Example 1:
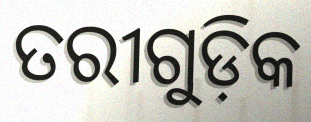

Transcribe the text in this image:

ତରୀଗୁଡ଼ିକ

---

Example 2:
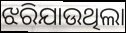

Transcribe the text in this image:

ଝରିଯାଉଥିଲା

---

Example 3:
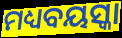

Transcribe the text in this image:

ମଧ୍ୟବୟସ୍କା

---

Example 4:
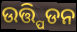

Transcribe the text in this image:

ଉତ୍ତ୍ପିଡନ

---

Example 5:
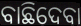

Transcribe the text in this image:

ବାଛିଦେବା